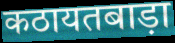
कठायतबाड़ा